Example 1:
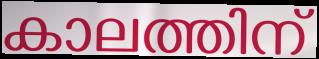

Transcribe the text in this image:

കാലത്തിന്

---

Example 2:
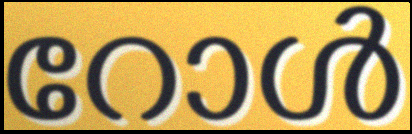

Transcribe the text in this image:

റോൾ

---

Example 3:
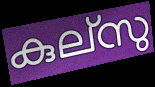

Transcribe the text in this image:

കുല്സു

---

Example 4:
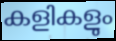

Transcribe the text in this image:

കളികളും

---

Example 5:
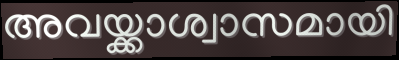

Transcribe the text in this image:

അവയ്ക്കാശ്വാസമായി